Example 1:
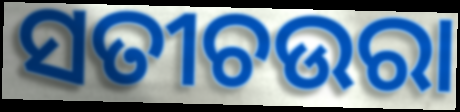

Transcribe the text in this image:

ସତୀଚଉରା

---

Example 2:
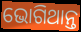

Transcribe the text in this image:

ଭୋଗିଥାନ୍ତ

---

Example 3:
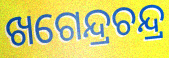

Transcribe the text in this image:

ଖଗେନ୍ଦ୍ରଚନ୍ଦ୍ର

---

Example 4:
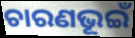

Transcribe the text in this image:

ଚାରଣଭୂଇଁ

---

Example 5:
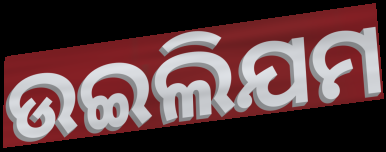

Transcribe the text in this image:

ଉଇଲିଯମ